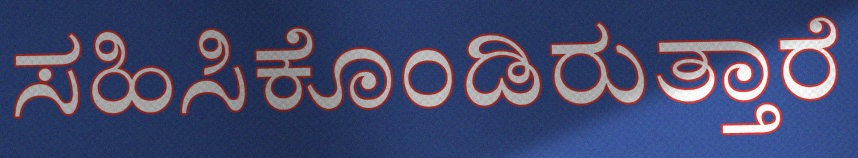
ಸಹಿಸಿಕೊಂಡಿರುತ್ತಾರೆ